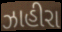
ઝાહીરા